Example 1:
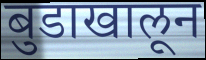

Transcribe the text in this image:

बुडाखालून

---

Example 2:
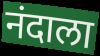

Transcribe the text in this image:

नंदाला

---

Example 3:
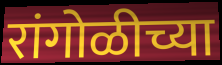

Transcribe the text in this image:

रांगोळीच्या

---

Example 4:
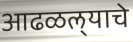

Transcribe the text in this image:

आढळल्याचे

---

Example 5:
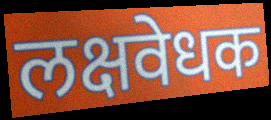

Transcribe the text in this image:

लक्षवेधक